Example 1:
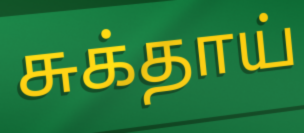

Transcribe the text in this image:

சுக்தாய்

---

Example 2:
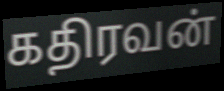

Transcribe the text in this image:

கதிரவன்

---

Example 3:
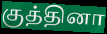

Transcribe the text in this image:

குத்தினா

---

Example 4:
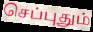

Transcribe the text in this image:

செப்புதும்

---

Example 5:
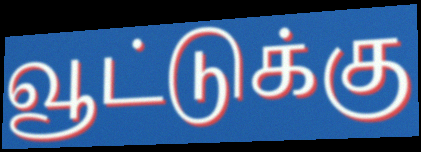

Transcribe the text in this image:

வூட்டுக்கு